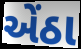
એંઠા